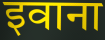
इवाना